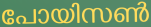
പോയിസൺ